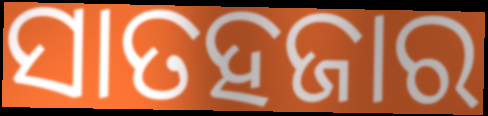
ସାତହଜାର